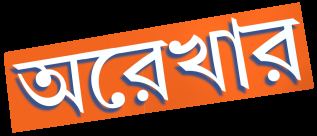
অরেখার